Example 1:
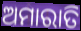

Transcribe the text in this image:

ଅମାରାତି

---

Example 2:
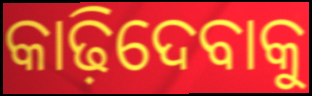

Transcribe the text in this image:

କାଢ଼ିଦେବାକୁ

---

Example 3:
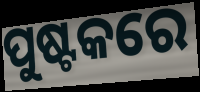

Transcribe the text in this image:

ପୁଷ୍ଟକରେ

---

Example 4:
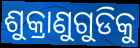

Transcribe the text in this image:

ଶୁକ୍ରାଣୁଗୁଡିକୁ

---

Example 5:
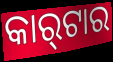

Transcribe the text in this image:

କାର୍‍ଟାର